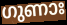
ഗുണാഃ